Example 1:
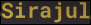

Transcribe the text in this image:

Sirajul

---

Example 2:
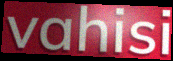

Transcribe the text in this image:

vahisi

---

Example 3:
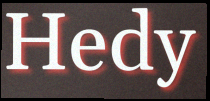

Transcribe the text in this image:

Hedy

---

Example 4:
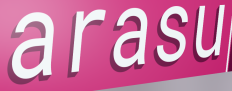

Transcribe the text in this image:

arasu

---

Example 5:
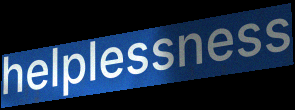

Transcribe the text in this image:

helplessness